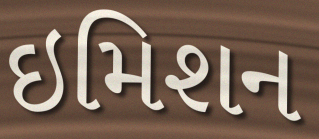
ઇમિશન